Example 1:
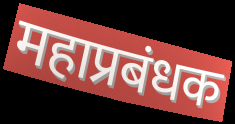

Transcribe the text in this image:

महाप्रबंधक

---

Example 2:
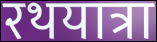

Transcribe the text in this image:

रथयात्रा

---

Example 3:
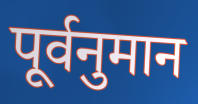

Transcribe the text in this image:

पूर्वनुमान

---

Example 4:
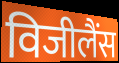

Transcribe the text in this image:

विजीलैंस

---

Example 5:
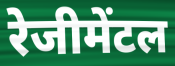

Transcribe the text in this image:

रेजीमेंटल